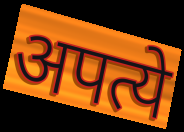
अपत्ये